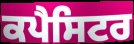
ਕਪੈਸਿਟਰ